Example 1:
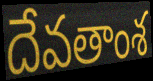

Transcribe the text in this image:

దేవతాంశ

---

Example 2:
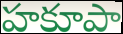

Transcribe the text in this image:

హకూపా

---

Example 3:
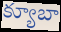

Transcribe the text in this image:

క్యూబా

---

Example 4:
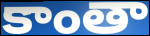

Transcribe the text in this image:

కాంతా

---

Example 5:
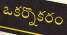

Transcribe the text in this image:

ఒకర్నొకరం